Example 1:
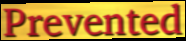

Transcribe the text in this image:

Prevented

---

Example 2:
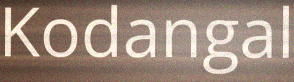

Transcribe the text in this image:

Kodangal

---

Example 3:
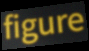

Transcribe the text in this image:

figure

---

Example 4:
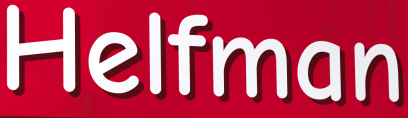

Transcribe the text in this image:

Helfman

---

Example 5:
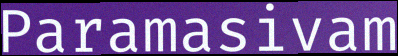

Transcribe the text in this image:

Paramasivam